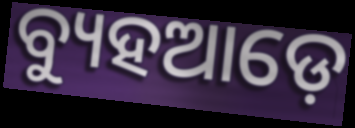
ବ୍ୟୁହଆଡ଼େ